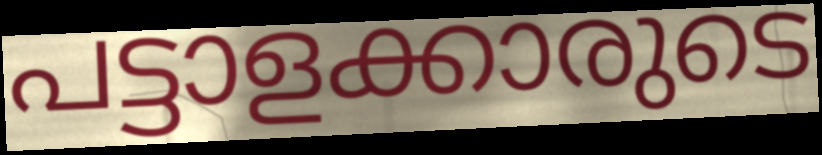
പട്ടാളക്കാരുടെ